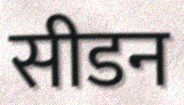
सीडन